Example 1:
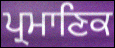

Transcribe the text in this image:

ਪ੍ਰਮਾਣਿਕ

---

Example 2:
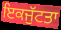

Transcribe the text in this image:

ਇਕਜੁੱਟਤਾ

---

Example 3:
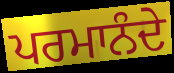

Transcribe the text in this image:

ਪਰਮਾਨੰਦੇ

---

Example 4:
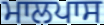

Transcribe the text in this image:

ਮਾਲਪਾਸ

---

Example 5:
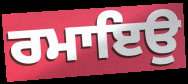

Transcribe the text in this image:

ਰਮਾਇਉ